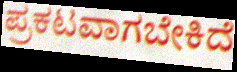
ಪ್ರಕಟವಾಗಬೇಕಿದೆ